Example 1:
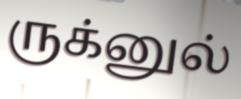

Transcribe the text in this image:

ருக்னுல்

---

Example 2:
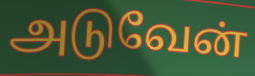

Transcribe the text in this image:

அடுவேன்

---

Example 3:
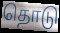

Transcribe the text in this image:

தொடு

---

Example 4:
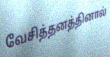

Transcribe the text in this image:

வேசித்தனத்தினால்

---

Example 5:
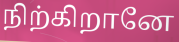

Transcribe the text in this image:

நிற்கிறானே